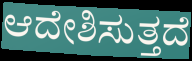
ಆದೇಶಿಸುತ್ತದೆ